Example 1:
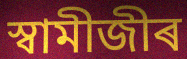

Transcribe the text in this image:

স্বামীজীৰ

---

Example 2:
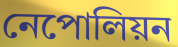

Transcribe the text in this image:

নেপোলিয়ন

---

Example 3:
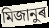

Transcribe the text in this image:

মিজানুৰ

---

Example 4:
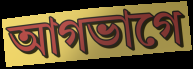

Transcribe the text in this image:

আগভাগে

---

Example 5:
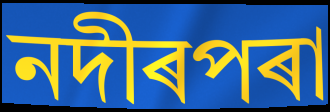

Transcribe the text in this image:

নদীৰপৰা